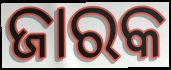
ଜାରକ